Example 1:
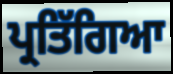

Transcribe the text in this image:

ਪ੍ਰਤਿੱਗਿਆ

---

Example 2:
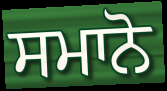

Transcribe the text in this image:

ਸਮਾਨੋ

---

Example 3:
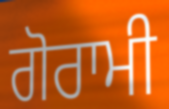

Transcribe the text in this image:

ਗੋਰਾਮੀ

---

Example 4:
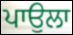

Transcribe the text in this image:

ਪਾਉਲਾ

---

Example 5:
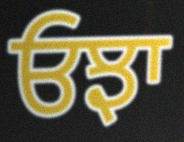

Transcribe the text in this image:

ਓਝਾ